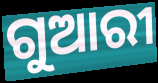
ଗୁଆରୀ